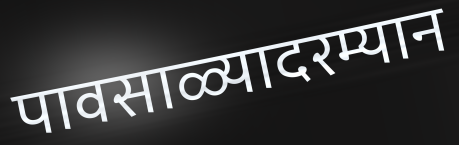
पावसाळ्यादरम्यान